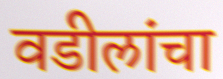
वडीलांचा